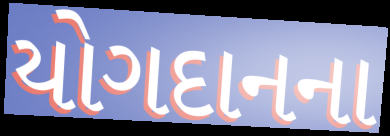
યોગદાનના